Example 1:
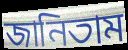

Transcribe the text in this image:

জানিতাম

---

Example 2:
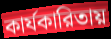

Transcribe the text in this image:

কার্যকারিতায়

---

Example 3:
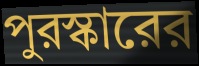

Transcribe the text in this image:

পুরস্কারের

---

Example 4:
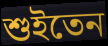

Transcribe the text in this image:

শুইতেন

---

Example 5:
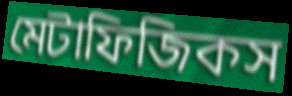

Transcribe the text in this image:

মেটাফিজিকস